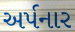
અર્પનાર